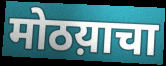
मोठय़ाचा